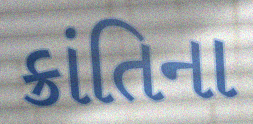
ક્રાંતિના